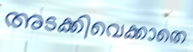
അടക്കിവെക്കാതെ